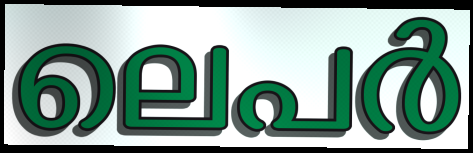
ലെപർ